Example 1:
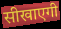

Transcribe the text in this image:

सीखाएगी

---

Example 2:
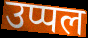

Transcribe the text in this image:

उप्पल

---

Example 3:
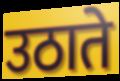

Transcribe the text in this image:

उठाते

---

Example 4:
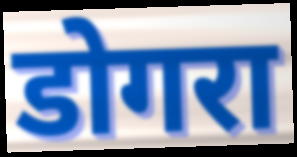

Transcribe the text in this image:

डोगरा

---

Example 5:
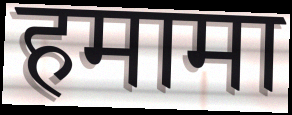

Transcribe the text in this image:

हमामा